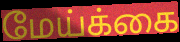
மேய்க்கை